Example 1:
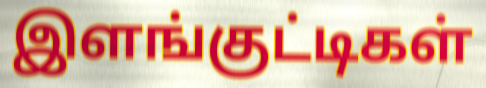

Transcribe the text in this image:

இளங்குட்டிகள்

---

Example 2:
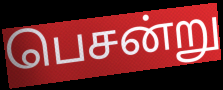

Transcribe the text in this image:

பெசன்று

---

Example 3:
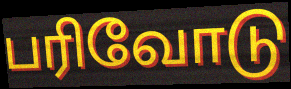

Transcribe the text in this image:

பரிவோடு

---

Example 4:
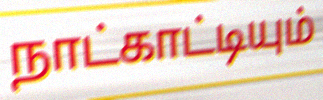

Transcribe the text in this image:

நாட்காட்டியும்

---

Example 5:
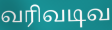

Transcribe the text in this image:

வரிவடிவ